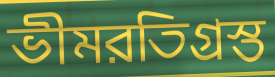
ভীমরতিগ্রস্ত